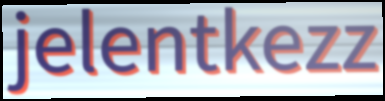
jelentkezz